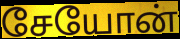
சேயோன்